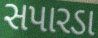
સપારડા